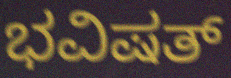
ಭವಿಷತ್